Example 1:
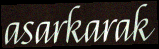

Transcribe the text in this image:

asarkarak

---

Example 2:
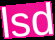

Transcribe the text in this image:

lsd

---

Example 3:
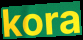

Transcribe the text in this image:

kora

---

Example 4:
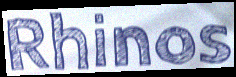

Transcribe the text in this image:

Rhinos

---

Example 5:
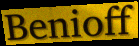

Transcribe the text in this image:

Benioff